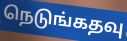
நெடுங்கதவு